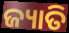
ଜ୍ୟାତି